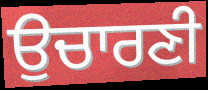
ਉਚਾਰਣੀ